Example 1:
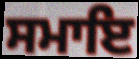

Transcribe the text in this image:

ਸਮਾਇ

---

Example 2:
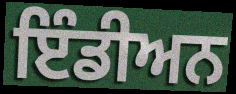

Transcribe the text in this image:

ਇੰਡੀਅਨ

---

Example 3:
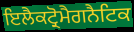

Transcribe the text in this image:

ਇਲੈਕਟ੍ਰੋਮੈਗਨੈਟਿਕ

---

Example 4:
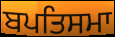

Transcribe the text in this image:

ਬਪਤਿਸਮਾ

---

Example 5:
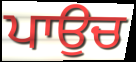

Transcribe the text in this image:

ਪਾਉਚ